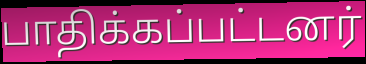
பாதிக்கப்பட்டனர்